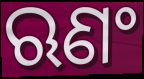
ଋଣଂ